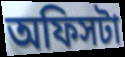
অফিসটা